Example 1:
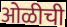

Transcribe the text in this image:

ओळीची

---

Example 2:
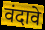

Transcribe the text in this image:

वंदावे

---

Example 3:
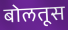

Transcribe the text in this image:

बोलतूस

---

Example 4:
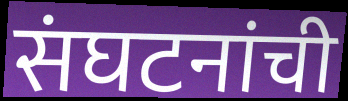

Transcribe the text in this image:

संघटनांची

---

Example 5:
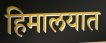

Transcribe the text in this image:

हिमालयात